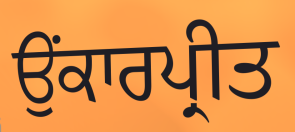
ਉਂਕਾਰਪ੍ਰੀਤ